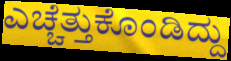
ಎಚ್ಚೆತ್ತುಕೊಂಡಿದ್ದು